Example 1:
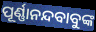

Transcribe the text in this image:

ପୂର୍ଣ୍ଣାନନ୍ଦବାବୁଙ୍କ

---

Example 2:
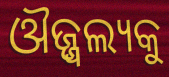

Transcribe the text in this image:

ଔଜ୍ଜ୍ଵଲ୍ୟକୁ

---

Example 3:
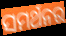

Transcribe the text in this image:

ସମର୍ଥନର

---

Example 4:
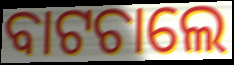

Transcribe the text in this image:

ବାଟଚାଲେ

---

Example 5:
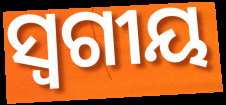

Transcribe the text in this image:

ସ୍ୱଗୀୟ